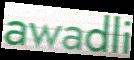
awadli